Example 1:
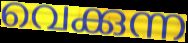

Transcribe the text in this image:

വെക്കുന്ന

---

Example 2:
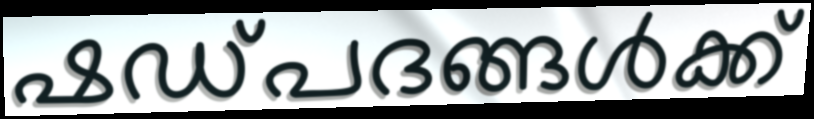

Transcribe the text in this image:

ഷഡ്പദങ്ങൾക്ക്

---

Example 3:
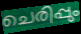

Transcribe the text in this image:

ചെരിപ്പും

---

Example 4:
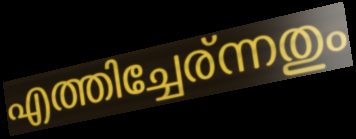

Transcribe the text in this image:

എത്തിച്ചേര്ന്നതും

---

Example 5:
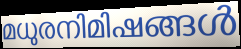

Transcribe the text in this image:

മധുരനിമിഷങ്ങൾ